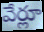
వేర్లూ